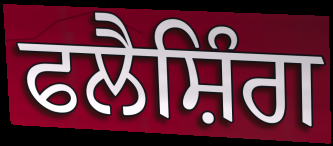
ਫਲੈਸ਼ਿੰਗ